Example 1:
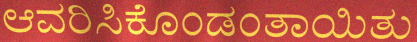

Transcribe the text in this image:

ಆವರಿಸಿಕೊಂಡಂತಾಯಿತು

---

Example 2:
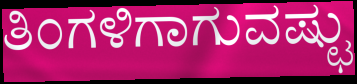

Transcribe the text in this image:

ತಿಂಗಳಿಗಾಗುವಷ್ಟು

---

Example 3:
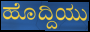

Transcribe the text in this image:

ಹೊದ್ದಿಯು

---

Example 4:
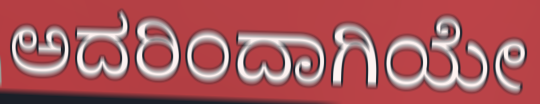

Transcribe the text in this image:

ಅದರಿಂದಾಗಿಯೇ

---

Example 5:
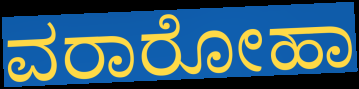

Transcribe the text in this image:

ವರಾರೋಹಾ